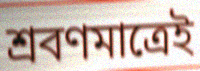
শ্রবণমাত্রেই